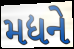
મદ્યને